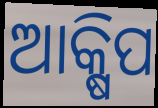
ଆକ୍ଷିପ